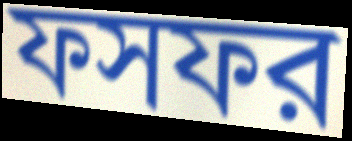
ফসফর